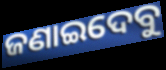
ଜଣାଇଦେବୁ